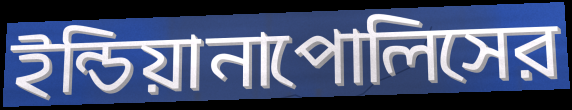
ইন্ডিয়ানাপোলিসের